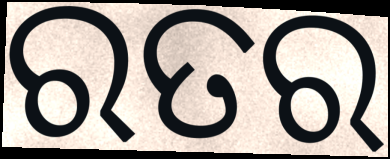
ରତର